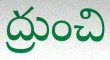
ద్రుంచి